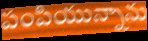
పంపియున్నాను